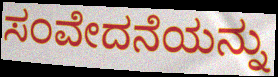
ಸಂವೇದನೆಯನ್ನು